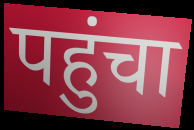
पहुंचा